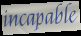
incapable